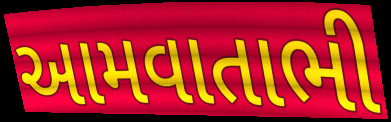
આમવાતાભી